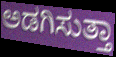
ಅಡಗಿಸುತ್ತಾ